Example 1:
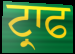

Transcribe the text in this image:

ਟ੍ਰਾਫ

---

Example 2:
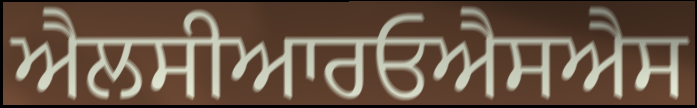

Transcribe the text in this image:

ਐਲਸੀਆਰਓਐਸਐਸ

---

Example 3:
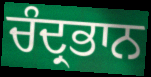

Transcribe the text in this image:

ਚੰਦ੍ਰਭਾਨ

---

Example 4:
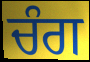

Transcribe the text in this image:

ਚੰਗ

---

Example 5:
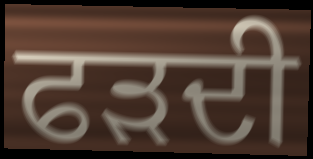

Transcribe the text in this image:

ਫੜਦੀ